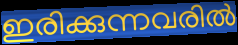
ഇരിക്കുന്നവരിൽ